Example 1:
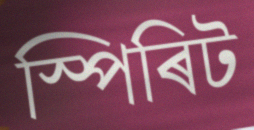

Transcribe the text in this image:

স্পিৰিট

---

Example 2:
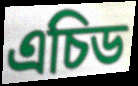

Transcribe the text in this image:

এচিড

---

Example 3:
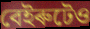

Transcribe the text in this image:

বেইৰুটেও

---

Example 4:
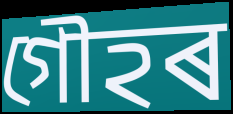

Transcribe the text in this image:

গৌহৰ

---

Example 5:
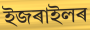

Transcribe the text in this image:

ইজৰাইলৰ